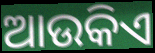
ଆଉକିଏ